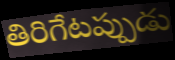
తిరిగేటప్పుడు